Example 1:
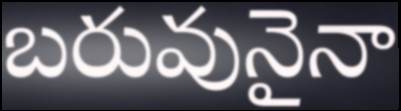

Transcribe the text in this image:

బరువునైనా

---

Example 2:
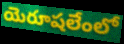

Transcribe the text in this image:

యెరూషలేంలో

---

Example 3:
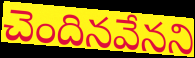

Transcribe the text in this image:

చెందినవేనని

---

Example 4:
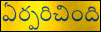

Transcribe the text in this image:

ఏర్పరిచింది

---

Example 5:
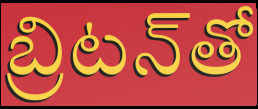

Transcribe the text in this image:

బ్రిటన్‌తో